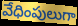
వేధింపులుగా